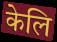
केलि